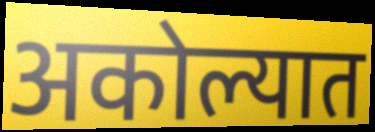
अकोल्यात